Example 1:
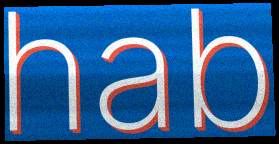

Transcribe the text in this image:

hab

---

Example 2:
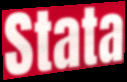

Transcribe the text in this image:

Stata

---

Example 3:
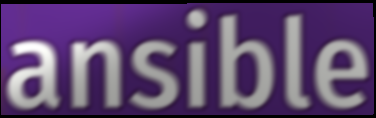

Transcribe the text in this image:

ansible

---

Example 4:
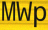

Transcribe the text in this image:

MWp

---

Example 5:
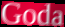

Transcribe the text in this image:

Goda